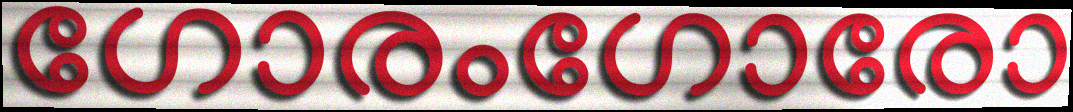
ഗോരംഗോരോ